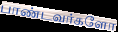
பாண்டவர்களோ